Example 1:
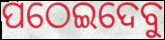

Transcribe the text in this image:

ପଠେଇଦେବୁ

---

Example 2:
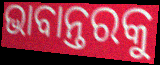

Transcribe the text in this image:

ଭାବାନ୍ତରକୁ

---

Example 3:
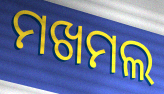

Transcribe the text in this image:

ମଖମଲ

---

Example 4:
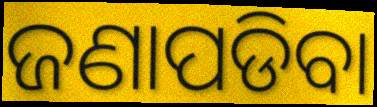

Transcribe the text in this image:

ଜଣାପଡିବା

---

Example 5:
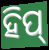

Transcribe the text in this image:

ହିପ୍